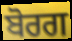
ਬੋਰਗ